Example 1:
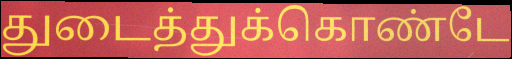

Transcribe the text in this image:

துடைத்துக்கொண்டே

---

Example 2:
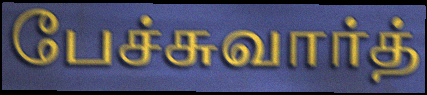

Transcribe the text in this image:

பேச்சுவார்த்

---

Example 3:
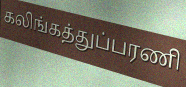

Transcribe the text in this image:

கலிங்கத்துப்பரணி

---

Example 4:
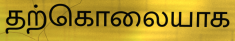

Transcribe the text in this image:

தற்கொலையாக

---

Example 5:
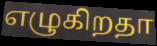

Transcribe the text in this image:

எழுகிறதா